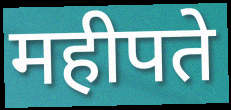
महीपते